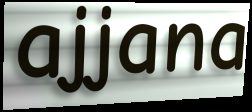
ajjana